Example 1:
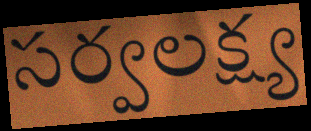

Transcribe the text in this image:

సర్వలక్ష్య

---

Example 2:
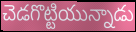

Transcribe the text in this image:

చెడగొట్టియున్నాడు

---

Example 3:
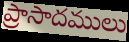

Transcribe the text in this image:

ప్రాసాదములు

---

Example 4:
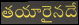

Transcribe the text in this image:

తయారైనదే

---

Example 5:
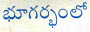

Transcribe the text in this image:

భూగర్భంలో